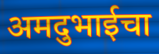
अमदुभाईचा